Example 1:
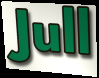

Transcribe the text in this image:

Jull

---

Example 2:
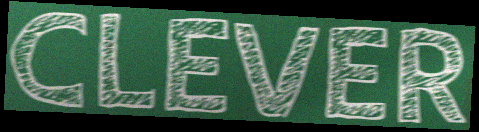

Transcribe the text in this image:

CLEVER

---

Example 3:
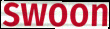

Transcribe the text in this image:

swoon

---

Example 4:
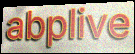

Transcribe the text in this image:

abplive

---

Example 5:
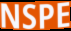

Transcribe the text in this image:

NSPE